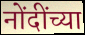
नोंदींच्या